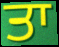
ਤਾ